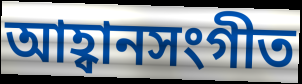
আহ্বানসংগীত